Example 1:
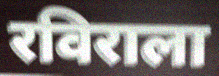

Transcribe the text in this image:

रविराला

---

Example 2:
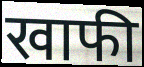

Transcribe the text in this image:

खाफी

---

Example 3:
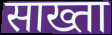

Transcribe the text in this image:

साख्ता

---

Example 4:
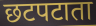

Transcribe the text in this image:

छटपटाता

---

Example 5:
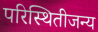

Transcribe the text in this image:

परिस्थितीजन्य